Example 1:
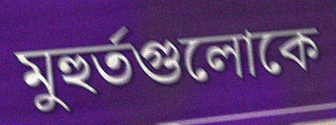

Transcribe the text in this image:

মুহুর্তগুলোকে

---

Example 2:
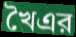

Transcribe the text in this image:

খৈএর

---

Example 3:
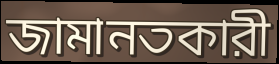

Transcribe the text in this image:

জামানতকারী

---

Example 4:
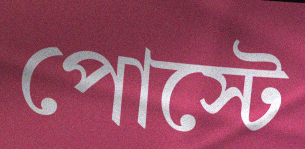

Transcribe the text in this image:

পোস্টে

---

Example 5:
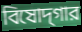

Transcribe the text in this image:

বিষোদ্‌গার